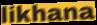
likhana